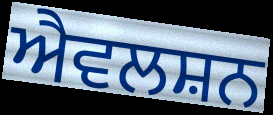
ਐਵਲਸ਼ਨ